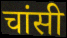
चांसी